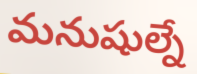
మనుషుల్నే